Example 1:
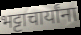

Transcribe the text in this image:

भट्टाचार्यांना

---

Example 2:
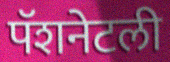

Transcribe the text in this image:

पॅशनेटली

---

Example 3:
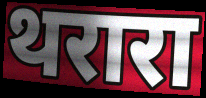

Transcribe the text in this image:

थरारा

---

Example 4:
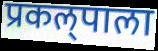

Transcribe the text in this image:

प्रकल्पाला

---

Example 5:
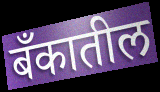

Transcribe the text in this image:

बँकातील